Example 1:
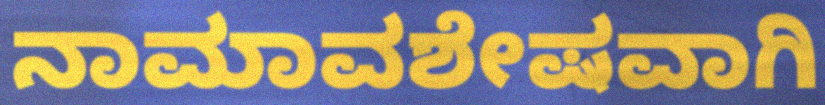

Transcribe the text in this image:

ನಾಮಾವಶೇಷವಾಗಿ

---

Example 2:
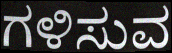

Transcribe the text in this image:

ಗಳಿಸುವ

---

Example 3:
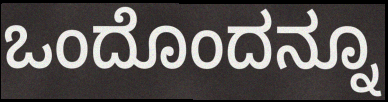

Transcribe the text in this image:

ಒಂದೊಂದನ್ನೂ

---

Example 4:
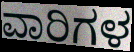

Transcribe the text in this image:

ವಾರಿಗಳ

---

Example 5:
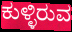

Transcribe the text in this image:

ಕುಳ್ಳಿರುವ